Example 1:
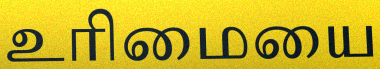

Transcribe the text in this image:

உரிமையை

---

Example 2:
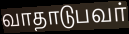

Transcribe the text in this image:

வாதாடுபவர்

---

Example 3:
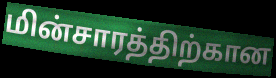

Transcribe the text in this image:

மின்சாரத்திற்கான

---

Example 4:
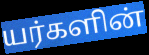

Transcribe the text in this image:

யர்களின்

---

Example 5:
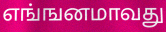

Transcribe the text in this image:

எங்ஙனமாவது